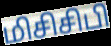
மிசிசிபி